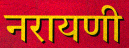
नरायणी